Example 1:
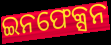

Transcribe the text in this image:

ଇନଫେକ୍ସନ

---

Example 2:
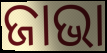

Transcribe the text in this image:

ଜାଭା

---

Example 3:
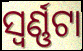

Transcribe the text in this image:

ସ୍ୱର୍ଣ୍ଣଟା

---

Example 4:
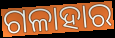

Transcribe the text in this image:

ଗଳାହାର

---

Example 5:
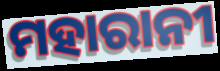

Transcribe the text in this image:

ମହାରାନୀ